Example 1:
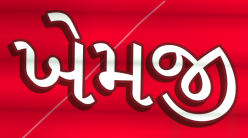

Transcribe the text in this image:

ખેમજી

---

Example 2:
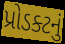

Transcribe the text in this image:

પ્રોડક્ટનું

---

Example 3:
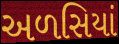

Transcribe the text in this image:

અળસિયાં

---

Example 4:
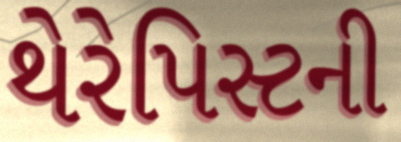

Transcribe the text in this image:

થેરેપિસ્ટની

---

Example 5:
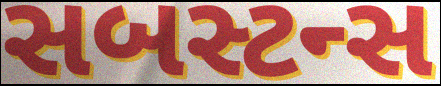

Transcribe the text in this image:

સબસ્ટન્સ